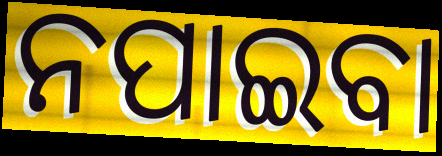
ନପାଇବା